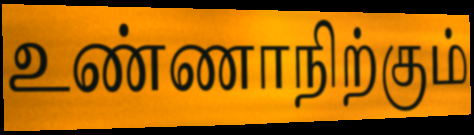
உண்ணாநிற்கும்